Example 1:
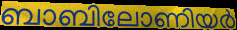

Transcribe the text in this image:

ബാബിലോണിയർ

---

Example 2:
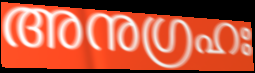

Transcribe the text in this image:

അനുഗ്രഹഃ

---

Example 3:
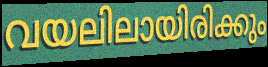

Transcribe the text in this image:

വയലിലായിരിക്കും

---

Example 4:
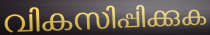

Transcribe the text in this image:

വികസിപ്പിക്കുക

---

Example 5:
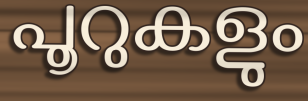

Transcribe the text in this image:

പൂറുകളും